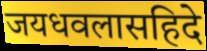
जयधवलासहिदे